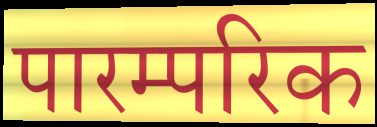
पारम्परिक